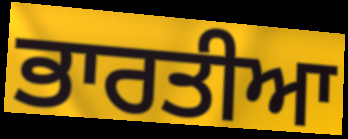
ਭਾਰਤੀਆ